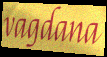
vagdana